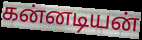
கன்னடியன்